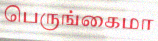
பெருங்கைமா